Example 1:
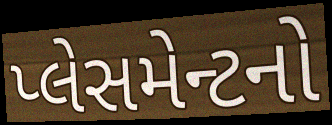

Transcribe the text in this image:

પ્લેસમેન્ટનો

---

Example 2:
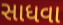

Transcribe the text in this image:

સાધવા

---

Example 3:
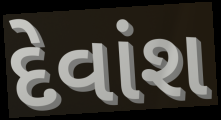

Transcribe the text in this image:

દેવાંશ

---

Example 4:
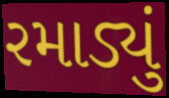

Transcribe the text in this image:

રમાડ્યું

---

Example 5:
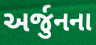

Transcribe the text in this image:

અર્જુનના